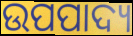
ଉପପାଦ୍ୟ